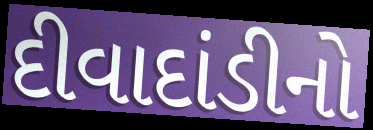
દીવાદાંડીનો